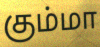
கும்மா